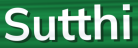
Sutthi